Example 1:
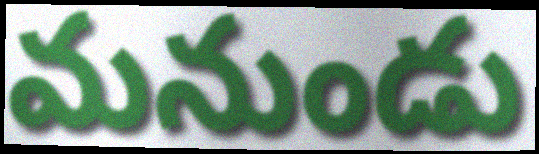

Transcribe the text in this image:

మనుండు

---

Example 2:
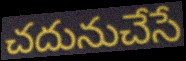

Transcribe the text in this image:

చదునుచేసే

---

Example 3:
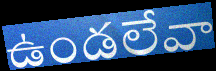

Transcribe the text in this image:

ఉండలేవా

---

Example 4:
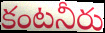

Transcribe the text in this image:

కంటనీరు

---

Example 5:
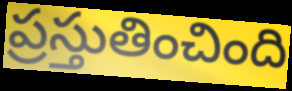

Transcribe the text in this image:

ప్రస్తుతించింది